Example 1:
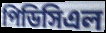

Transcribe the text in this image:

পিডিসিএল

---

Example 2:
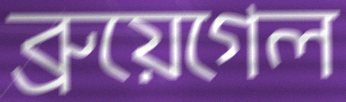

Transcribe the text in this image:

ব্রুয়েগেল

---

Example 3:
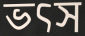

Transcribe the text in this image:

ভৎস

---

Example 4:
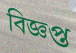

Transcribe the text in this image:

বিজ্ঞপ্ত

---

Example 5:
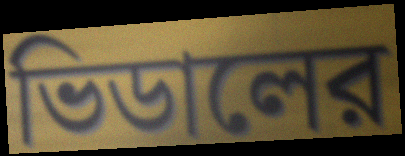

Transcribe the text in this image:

ভিডালের